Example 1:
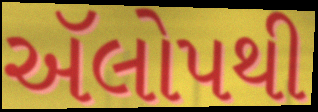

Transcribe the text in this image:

ઍલોપથી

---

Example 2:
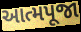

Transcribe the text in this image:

આત્મપૂજા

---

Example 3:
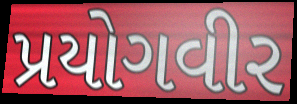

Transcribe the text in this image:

પ્રયોગવીર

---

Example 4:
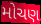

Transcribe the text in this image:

મોચણ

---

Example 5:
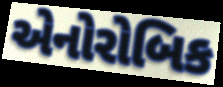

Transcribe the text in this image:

એનોરોબિક